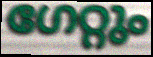
ഗേറ്റും